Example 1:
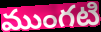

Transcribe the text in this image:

ముంగటి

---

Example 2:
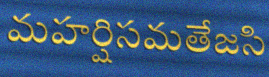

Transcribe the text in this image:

మహర్షిసమతేజసి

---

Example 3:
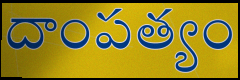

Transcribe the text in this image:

దాంపత్యం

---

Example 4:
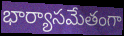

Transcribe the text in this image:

భార్యాసమేతంగా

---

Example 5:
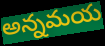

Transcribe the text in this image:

అన్నమయ